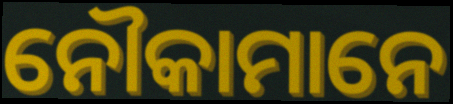
ନୌକାମାନେ